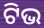
ଟିଭ